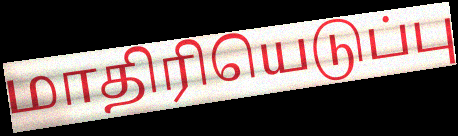
மாதிரியெடுப்பு